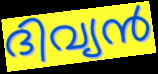
ദിവ്യൻ